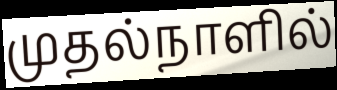
முதல்நாளில்